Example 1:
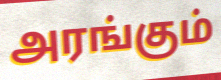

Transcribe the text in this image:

அரங்கும்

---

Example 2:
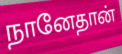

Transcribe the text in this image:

நானேதான்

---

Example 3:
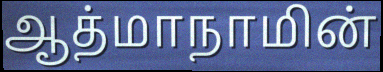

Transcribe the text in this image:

ஆத்மாநாமின்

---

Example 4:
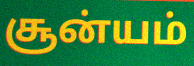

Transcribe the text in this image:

சூன்யம்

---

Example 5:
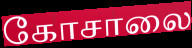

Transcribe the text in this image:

கோசாலை